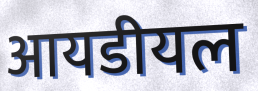
आयडीयल